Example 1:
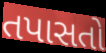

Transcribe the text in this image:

તપાસતો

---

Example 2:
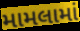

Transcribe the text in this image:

મામલામાં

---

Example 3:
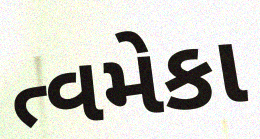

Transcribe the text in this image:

ત્વમેકા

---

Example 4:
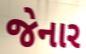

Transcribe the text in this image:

જેનાર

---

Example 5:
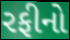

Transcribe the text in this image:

રફીનો